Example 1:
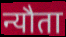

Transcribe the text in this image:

न्यौता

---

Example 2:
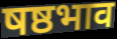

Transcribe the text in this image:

षष्ठभाव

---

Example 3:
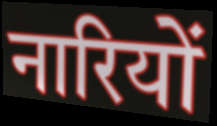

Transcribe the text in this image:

नारियों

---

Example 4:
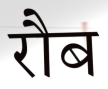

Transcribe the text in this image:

रौब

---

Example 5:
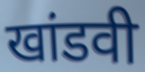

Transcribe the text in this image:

खांडवी